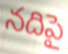
నదిపై